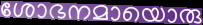
ശോഭനമായൊരു